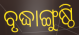
ବୃଦ୍ଧାଙ୍ଗୁଷ୍ଠି